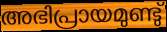
അഭിപ്രായമുണ്ടു്